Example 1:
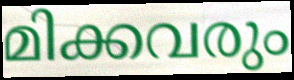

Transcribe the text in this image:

മിക്കവരും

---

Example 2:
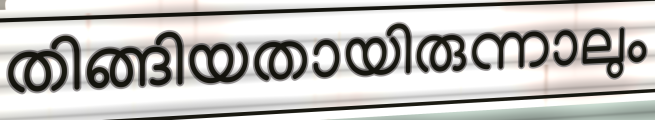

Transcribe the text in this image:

തിങ്ങിയതായിരുന്നാലും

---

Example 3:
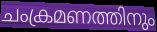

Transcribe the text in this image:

ചംക്രമണത്തിനും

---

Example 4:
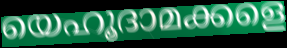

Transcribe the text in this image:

യെഹൂദാമക്കളെ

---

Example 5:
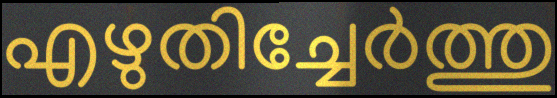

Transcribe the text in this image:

എഴുതിച്ചേർത്തു